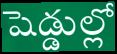
షెడ్డుల్లో